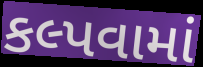
કલ્પવામાં